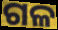
ଗଳ